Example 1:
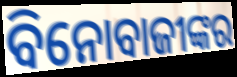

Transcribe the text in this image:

ବିନୋବାଜୀଙ୍କର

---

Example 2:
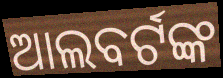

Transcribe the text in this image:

ଆଲବର୍ଟଙ୍କ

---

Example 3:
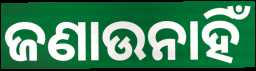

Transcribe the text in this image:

ଜଣାଉନାହିଁ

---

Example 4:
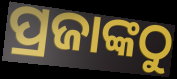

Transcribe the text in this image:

ପ୍ରଜାଙ୍କଠୁ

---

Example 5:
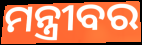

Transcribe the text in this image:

ମନ୍ତ୍ରୀବର